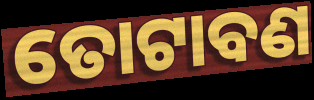
ତୋଟାବଣ